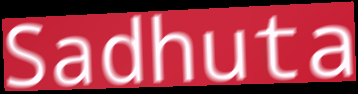
Sadhuta